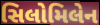
સિલોમિલેન